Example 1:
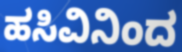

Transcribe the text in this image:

ಹಸಿವಿನಿಂದ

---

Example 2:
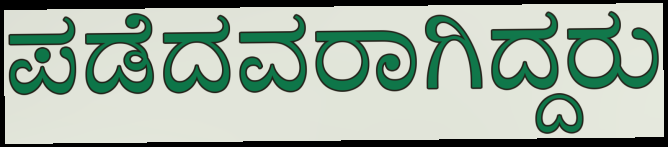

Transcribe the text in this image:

ಪಡೆದವರಾಗಿದ್ದರು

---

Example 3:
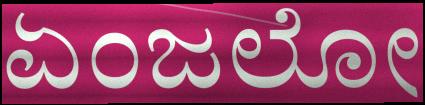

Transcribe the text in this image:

ಏಂಜಲೋ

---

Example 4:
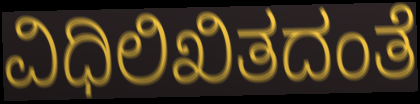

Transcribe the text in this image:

ವಿಧಿಲಿಖಿತದಂತೆ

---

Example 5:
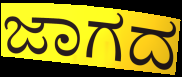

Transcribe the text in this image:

ಜಾಗದ